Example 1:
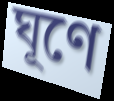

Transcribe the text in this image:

ঘূণে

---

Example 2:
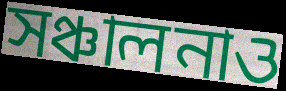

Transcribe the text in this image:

সঞ্চালনাও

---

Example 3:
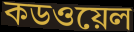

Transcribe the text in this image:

কডওয়েল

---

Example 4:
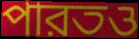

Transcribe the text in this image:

পারতও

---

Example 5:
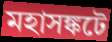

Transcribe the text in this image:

মহাসঙ্কটে